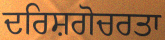
ਦਰਿਸ਼ਗੋਚਰਤਾ